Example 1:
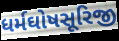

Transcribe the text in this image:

ધર્મઘોષસૂરિજી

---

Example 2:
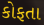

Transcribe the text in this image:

કોફતા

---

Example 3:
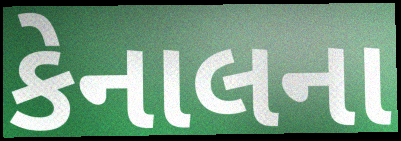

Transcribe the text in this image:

કેનાલના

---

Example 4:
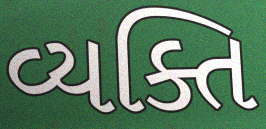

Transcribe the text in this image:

વ્યક્તિ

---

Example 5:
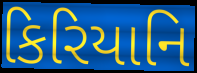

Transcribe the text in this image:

કિરિયાનિ